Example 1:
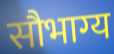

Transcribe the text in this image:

सौभाग्य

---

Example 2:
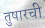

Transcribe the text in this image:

तुषारची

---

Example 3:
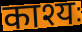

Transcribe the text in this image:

काश्यः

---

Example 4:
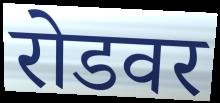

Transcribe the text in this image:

रोडवर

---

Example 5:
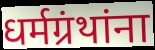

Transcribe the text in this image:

धर्मग्रंथांना